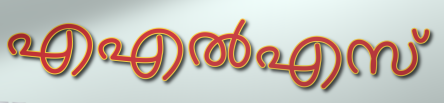
എഎൽഎസ്